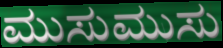
ಮುಸುಮುಸು